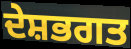
ਦੇਸ਼ਭਗਤ